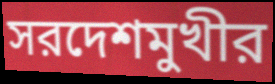
সরদেশমুখীর